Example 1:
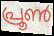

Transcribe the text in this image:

പ്രൂൺ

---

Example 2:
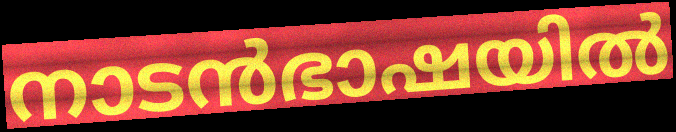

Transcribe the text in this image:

നാടൻഭാഷയിൽ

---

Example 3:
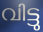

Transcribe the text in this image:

വിട്ടു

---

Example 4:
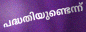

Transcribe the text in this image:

പദ്ധതിയുണ്ടെന്ന്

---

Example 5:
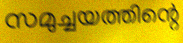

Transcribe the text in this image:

സമുച്ചയത്തിന്റെ